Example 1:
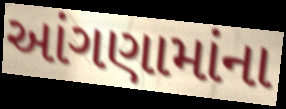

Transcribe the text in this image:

આંગણામાંના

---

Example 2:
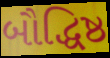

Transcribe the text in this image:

બૌદ્ધિષ્ઠ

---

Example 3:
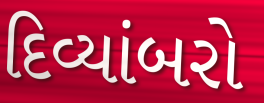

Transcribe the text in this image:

દિવ્યાંબરો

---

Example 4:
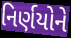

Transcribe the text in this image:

નિર્ણયોને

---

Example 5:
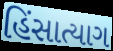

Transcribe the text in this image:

હિંસાત્યાગ